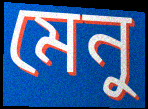
মেনু